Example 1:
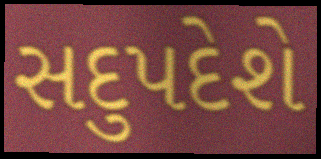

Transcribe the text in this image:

સદુપદેશે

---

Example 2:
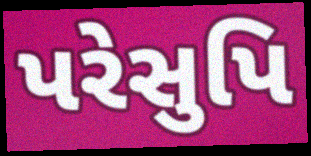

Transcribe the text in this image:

પરેસુપિ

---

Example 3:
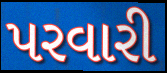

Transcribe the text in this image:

પરવારી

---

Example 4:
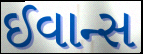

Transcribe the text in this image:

ઈવાન્સ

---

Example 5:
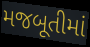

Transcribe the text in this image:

મજબૂતીમાં